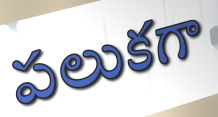
పలుకగా